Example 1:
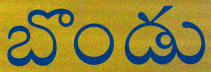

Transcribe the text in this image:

బొండు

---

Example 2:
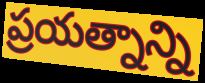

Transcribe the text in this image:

ప్రయత్నాన్ని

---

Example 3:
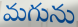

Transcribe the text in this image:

మగును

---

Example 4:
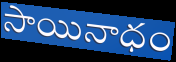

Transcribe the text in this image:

సాయినాధం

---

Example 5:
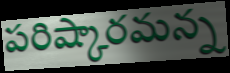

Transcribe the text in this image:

పరిష్కారమన్న